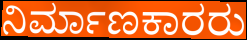
ನಿರ್ಮಾಣಕಾರರು